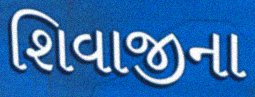
શિવાજીના